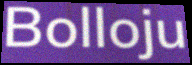
Bolloju